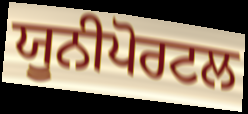
ਯੂਨੀਪੋਰਟਲ